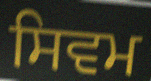
ਸਿਵਮ